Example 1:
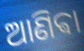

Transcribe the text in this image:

ଆଣିଵା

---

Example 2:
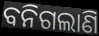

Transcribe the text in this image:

ବନିଗଲାଣି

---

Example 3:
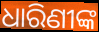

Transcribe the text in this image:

ଧାରିଣୀଙ୍କ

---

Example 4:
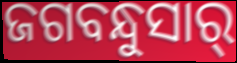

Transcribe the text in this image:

ଜଗବନ୍ଧୁସାର୍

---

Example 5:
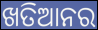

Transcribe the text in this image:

ଖତିଆନର